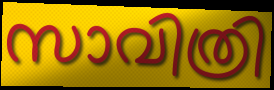
സാവിത്രി